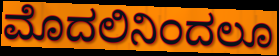
ಮೊದಲಿನಿಂದಲೂ